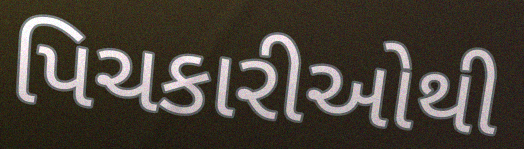
પિચકારીઓથી